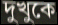
দুখুকে